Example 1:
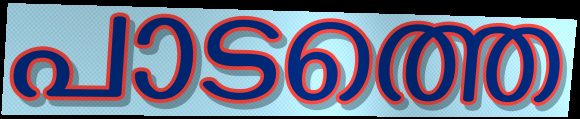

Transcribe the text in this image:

പാടത്തെ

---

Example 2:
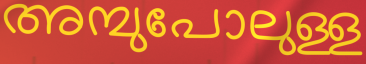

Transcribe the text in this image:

അമ്പുപോലുള്ള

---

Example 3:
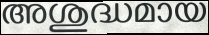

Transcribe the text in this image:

അശുദ്ധമായ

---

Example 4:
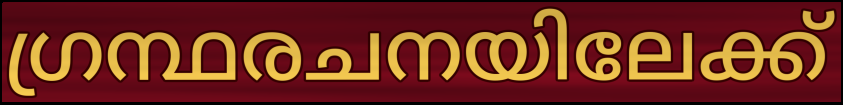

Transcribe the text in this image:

ഗ്രന്ഥരചനയിലേക്ക്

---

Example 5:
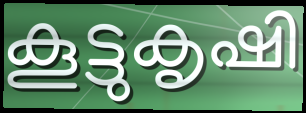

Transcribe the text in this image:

കൂട്ടുകൃഷി